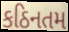
કઠિનતમ